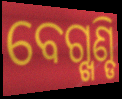
ବେଗ୍ଖଣ୍ଡି